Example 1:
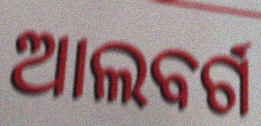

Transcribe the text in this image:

ଆଲବର୍ଗ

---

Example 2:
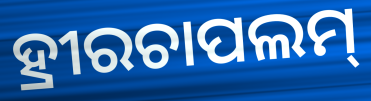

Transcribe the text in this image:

ହ୍ରୀରଚାପଲମ୍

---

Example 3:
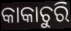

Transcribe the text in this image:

କାକାଚୁରି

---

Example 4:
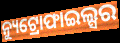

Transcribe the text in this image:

ନ୍ୟୁଟ୍ରୋଫାଇଲ୍ସର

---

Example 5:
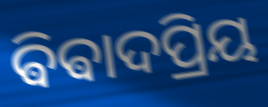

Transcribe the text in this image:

ଵିଵାଦପ୍ରିୟ